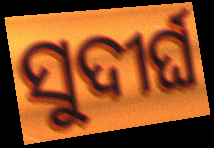
ସୁଦୀର୍ଘ